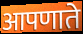
आपणाते